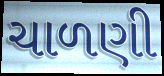
ચાળણી